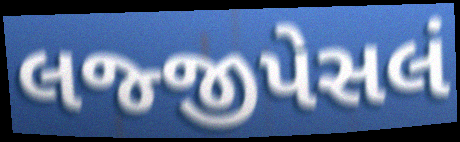
લજ્જીપેસલં